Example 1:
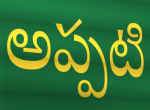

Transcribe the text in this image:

అప్పటి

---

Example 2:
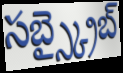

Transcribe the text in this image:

సబ్స్క్రైబ్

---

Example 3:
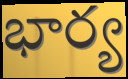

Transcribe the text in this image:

భార్య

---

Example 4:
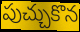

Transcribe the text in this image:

పుచ్చుకొన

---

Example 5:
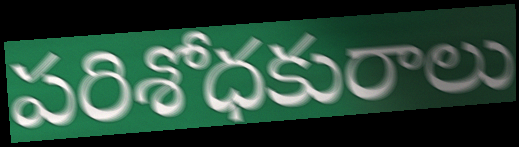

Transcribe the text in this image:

పరిశోధకురాలు